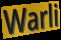
Warli